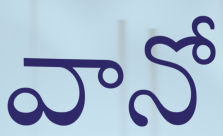
వానో